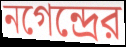
নগেন্দ্রের